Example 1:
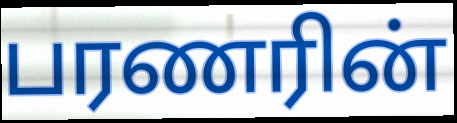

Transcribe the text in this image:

பரணரின்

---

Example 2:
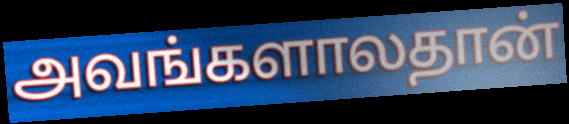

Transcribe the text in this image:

அவங்களாலதான்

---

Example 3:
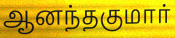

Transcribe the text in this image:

ஆனந்தகுமார்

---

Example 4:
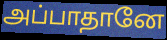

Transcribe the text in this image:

அப்பாதானே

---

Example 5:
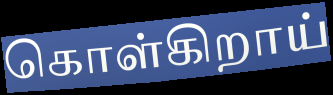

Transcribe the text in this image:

கொள்கிறாய்